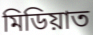
মিডিয়াত